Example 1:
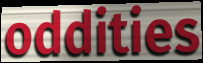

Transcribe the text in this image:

oddities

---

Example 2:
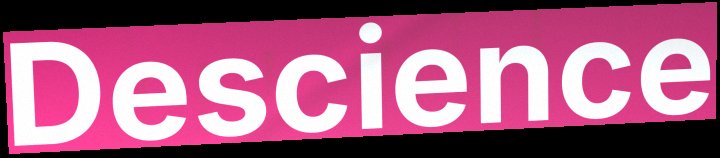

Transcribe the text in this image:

Descience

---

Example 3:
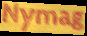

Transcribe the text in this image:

Nymag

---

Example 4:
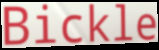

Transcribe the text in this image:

Bickle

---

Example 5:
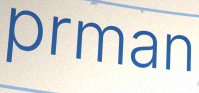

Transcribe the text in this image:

prman